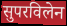
सुपरविलेन